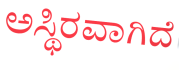
ಅಸ್ಥಿರವಾಗಿದೆ